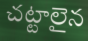
చట్టాలైన